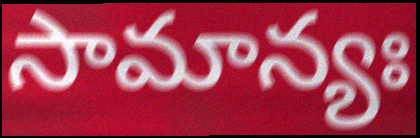
సామాన్యః